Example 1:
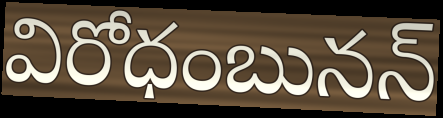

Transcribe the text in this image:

విరోధంబునన్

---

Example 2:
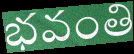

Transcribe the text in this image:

భవంతి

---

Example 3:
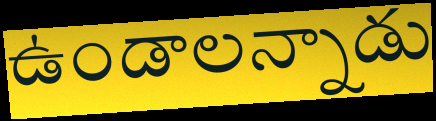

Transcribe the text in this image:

ఉండాలన్నాడు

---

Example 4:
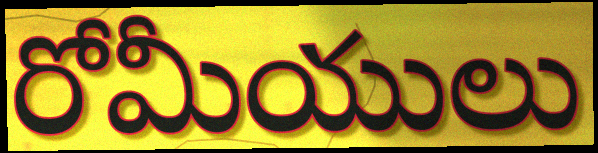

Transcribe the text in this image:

రోమీయులు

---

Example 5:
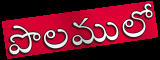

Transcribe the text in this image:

పొలములో